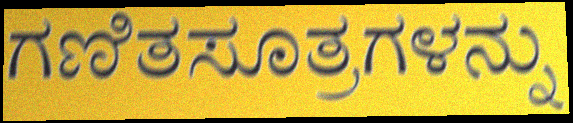
ಗಣಿತಸೂತ್ರಗಳನ್ನು